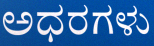
ಅಧರಗಳು